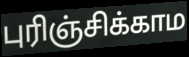
புரிஞ்சிக்காம